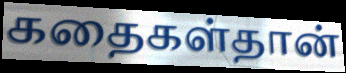
கதைகள்தான்